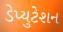
ડેપ્યુટેશન